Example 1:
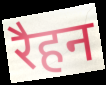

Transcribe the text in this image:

रैहन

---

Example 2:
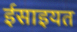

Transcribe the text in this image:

ईसाइयत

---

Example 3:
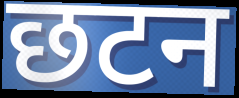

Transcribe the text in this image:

छटन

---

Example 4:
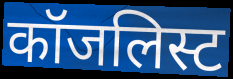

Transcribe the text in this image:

कॉजलिस्ट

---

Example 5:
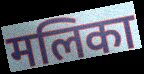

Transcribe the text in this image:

मलिका